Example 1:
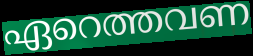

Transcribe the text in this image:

ഏറെത്തവണ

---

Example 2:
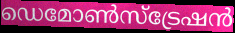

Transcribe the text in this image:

ഡെമോൺസ്ട്രേഷൻ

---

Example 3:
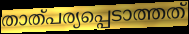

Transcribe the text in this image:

താത്പര്യപ്പെടാത്തത്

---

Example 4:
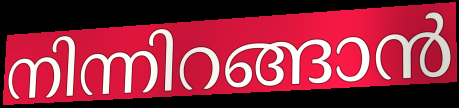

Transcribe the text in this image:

നിന്നിറങ്ങാൻ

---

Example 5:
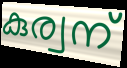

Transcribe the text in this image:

കുര്വന്